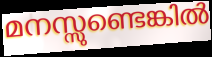
മനസ്സുണ്ടെങ്കിൽ